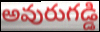
అవురుగడ్డి